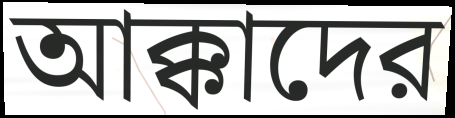
আক্কাদের